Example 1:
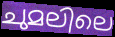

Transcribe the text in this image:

ചുമലിലെ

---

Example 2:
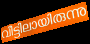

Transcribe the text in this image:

വീട്ടിലായിരുന്നു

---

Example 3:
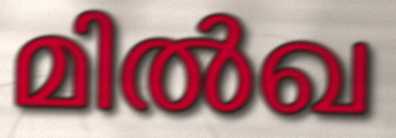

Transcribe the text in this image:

മിൽഖ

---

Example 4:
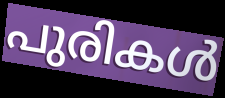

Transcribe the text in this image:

പുരികൾ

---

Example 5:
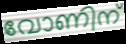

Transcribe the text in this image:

വോണിന്